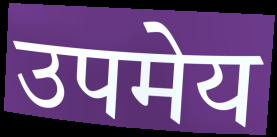
उपमेय